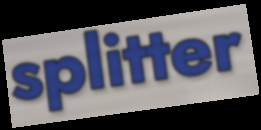
splitter